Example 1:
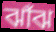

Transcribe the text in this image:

ঝাঁঝ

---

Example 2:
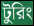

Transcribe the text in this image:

টুরিং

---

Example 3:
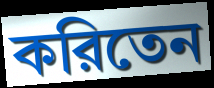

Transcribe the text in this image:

করিতেন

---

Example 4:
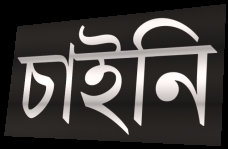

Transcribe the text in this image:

চাইনি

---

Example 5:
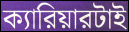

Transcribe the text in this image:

ক্যারিয়ারটাই